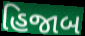
હિજાબ